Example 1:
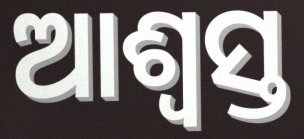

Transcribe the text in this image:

ଆଶ୍ୱସ୍ତ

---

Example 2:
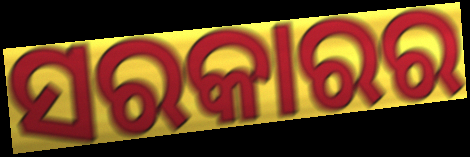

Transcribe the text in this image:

ସରକାରର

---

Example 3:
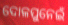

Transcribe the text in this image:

ଦୋଳପୁନେଇଁ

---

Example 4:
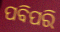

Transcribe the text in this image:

ପବିପରି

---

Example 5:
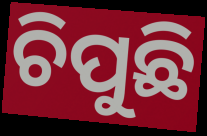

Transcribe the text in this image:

ଚିପୁଛି